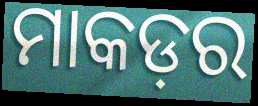
ମାକଡ଼ର